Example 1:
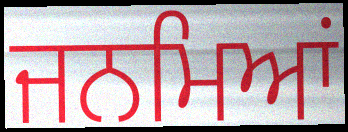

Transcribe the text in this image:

ਜਨਮਿਆਂ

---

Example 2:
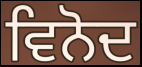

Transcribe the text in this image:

ਵਿਨੋਦ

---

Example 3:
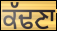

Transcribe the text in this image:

ਕੱਢਣਾ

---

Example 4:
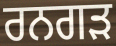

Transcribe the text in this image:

ਰਨਗੜ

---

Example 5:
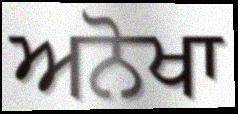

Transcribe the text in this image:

ਅਨੋਖਾ